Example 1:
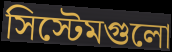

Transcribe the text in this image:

সিস্টেমগুলো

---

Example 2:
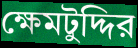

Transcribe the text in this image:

ক্ষেমটুদ্দির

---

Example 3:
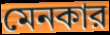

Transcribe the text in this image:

মেনকার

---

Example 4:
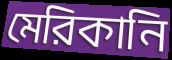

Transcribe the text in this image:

মেরিকানি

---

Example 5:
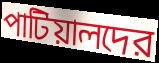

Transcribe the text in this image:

পাটিয়ালদের